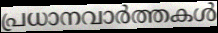
പ്രധാനവാർത്തകൾ